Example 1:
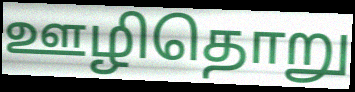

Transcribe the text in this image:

ஊழிதொறு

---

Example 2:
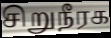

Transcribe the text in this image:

சிறுநீரக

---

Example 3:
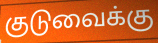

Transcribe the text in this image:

குடுவைக்கு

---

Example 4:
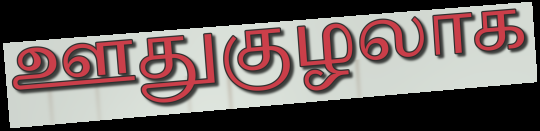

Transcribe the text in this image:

ஊதுகுழலாக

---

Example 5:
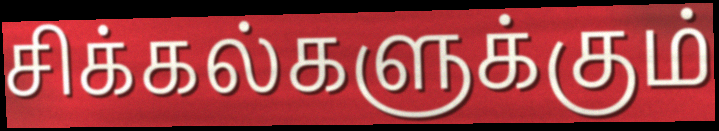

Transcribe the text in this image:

சிக்கல்களுக்கும்